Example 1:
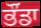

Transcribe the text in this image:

ਭੌਂਡਾ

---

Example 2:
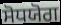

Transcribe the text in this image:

ਸੋਧਯੋਗ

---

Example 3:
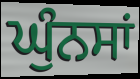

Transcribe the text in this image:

ਘੁੰਨਸਾਂ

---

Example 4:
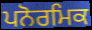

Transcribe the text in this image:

ਪਨੋਰਮਿਕ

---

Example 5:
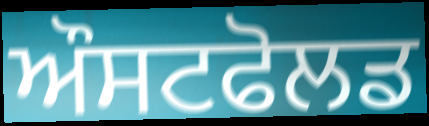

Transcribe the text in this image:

ਔਸਟਫੋਲਡ